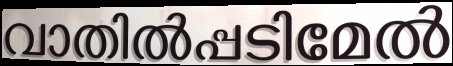
വാതിൽപ്പടിമേൽ